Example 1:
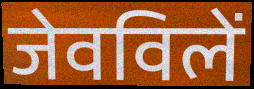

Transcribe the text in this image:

जेवविलें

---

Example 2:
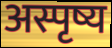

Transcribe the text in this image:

अस्पृष्य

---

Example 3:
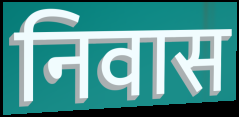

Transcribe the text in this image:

निवास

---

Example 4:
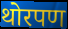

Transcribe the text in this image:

थोरपण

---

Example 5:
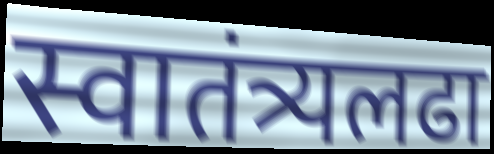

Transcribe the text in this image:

स्वातंत्र्यलढा